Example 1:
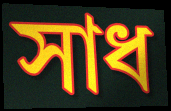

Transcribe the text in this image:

সাধ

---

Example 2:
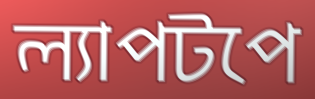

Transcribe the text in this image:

ল্যাপটপে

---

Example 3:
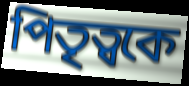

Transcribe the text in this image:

পিতৃত্বকে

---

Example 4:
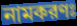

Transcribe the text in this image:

নামকরণঃ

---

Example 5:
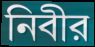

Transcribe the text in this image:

নিবীর